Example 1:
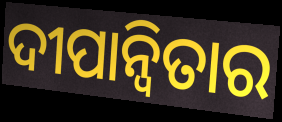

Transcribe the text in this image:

ଦୀପାନ୍ୱିତାର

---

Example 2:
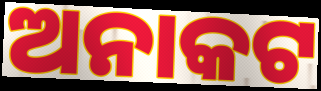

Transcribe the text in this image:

ଅନାକଟ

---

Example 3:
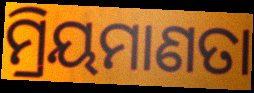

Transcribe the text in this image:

ମ୍ରିୟମାଣତା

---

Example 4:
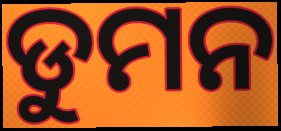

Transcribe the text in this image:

ଡୁମନ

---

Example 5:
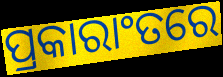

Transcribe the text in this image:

ପ୍ରକାରାଂତରେ